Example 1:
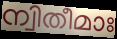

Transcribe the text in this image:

ന്വിതീമാഃ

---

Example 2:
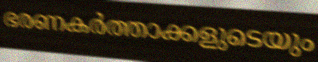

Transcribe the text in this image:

ഭരണകർത്താക്കളുടെയും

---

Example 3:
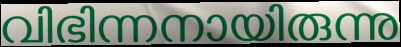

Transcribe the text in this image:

വിഭിന്നനായിരുന്നു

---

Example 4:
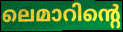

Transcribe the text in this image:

ലെമാറിന്റെ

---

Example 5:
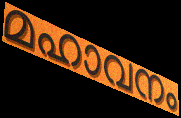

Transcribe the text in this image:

മഹാവനം